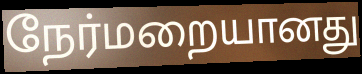
நேர்மறையானது